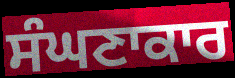
ਸੰਘਣਾਕਾਰ